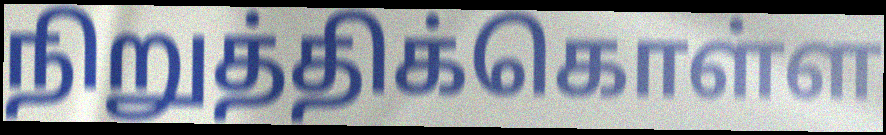
நிறுத்திக்கொள்ள